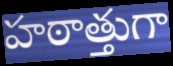
హఠాత్తుగా